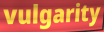
vulgarity